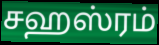
சஹஸ்ரம்